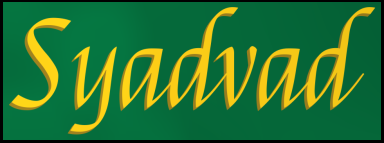
Syadvad